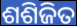
ଶଶିଜିତ